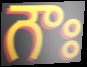
గౌః